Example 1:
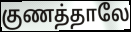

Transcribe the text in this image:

குணத்தாலே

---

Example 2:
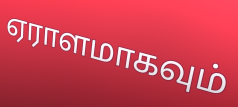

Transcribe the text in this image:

ஏராளமாகவும்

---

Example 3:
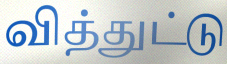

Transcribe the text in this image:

வித்துட்டு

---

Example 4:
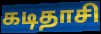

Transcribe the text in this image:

கடிதாசி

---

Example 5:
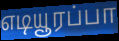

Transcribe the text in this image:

எடியூரப்பா